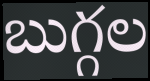
బుగ్గల